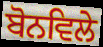
ਬੋਨਵਿਲੇ